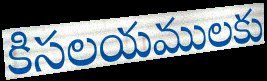
కిసలయములకు